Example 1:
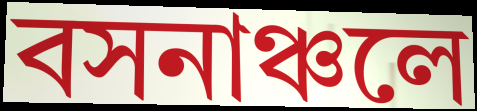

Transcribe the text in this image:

বসনাঞ্চলে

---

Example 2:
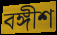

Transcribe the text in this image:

বঙ্গীশ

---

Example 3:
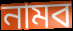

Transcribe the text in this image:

নামব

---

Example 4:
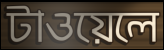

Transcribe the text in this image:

টাওয়েলে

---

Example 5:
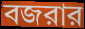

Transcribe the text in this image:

বজরার